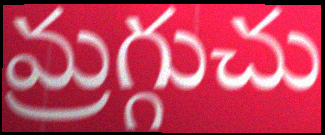
మ్రగ్గుచు